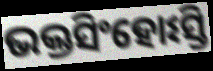
ଭକ୍ତସିଂହୋଽସ୍ତି